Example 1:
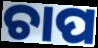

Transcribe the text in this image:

ଚାପ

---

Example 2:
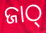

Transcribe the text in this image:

ଜାଠ୍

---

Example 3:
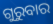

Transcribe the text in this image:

ଗୁରୁବାର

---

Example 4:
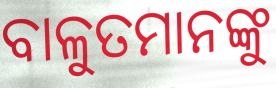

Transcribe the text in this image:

ବାଳୁତମାନଙ୍କୁ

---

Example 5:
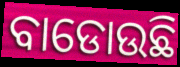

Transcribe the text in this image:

ବାଡୋଉଛି